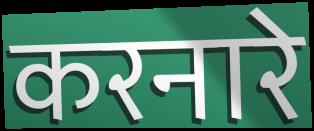
करनारे